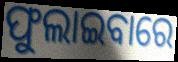
ଫୁଲାଇବାରେ